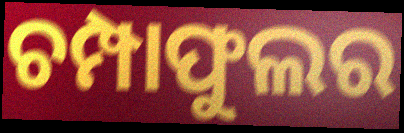
ଚମ୍ପାଫୁଲର